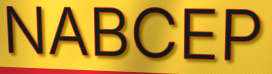
NABCEP